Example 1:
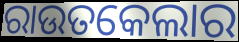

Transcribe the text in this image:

ରାଉତକେଲାର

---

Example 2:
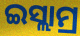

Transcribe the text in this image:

ଇସ୍ଲାମ୍ର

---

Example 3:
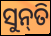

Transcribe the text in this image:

ସୁନ୍‌ତି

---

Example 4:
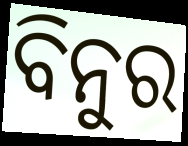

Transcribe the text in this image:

ବିନୁର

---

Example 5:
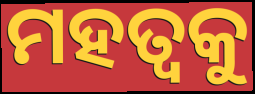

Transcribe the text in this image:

ମହତ୍ଵକୁ